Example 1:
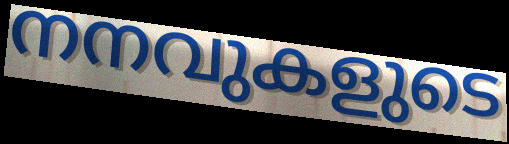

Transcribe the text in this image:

നനവുകളുടെ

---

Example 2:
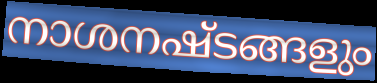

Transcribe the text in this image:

നാശനഷ്ടങ്ങളും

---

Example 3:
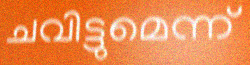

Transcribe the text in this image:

ചവിട്ടുമെന്ന്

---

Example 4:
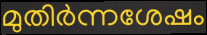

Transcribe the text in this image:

മുതിർന്നശേഷം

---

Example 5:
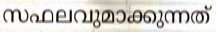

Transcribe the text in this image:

സഫലവുമാക്കുന്നത്